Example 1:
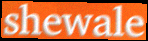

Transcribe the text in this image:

shewale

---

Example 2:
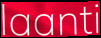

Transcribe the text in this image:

laanti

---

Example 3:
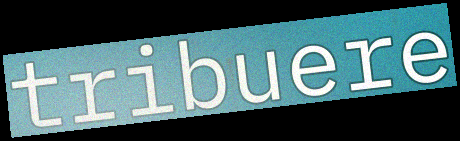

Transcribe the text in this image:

tribuere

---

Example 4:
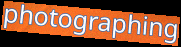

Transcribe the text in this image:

photographing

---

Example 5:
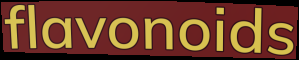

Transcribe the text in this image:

flavonoids